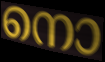
നൊ